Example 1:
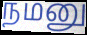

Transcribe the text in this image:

நமனு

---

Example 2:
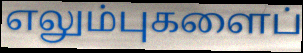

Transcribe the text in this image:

எலும்புகளைப்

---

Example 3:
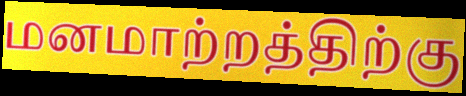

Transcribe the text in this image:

மனமாற்றத்திற்கு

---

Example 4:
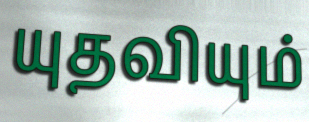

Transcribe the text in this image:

யுதவியும்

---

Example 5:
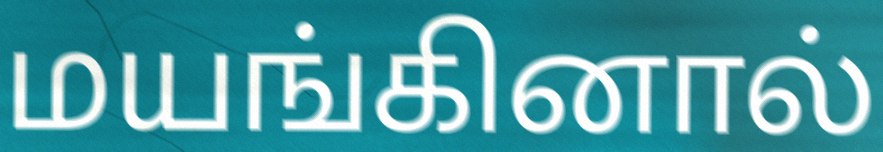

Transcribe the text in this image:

மயங்கினால்